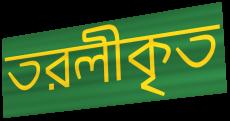
তরলীকৃত